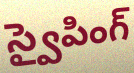
స్వైపింగ్